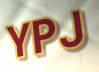
YPJ